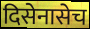
दिसेनासेच